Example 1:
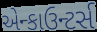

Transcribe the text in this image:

એન્કાઉન્ટર્સ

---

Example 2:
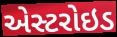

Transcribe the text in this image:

એસ્ટરોઇડ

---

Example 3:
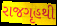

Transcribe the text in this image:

રાજગૃહથી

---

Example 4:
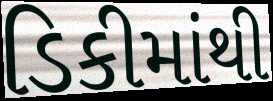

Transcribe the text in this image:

ડિકીમાંથી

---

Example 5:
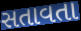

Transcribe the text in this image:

સતાવતા